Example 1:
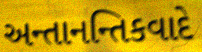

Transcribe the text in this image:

અન્તાનન્તિકવાદે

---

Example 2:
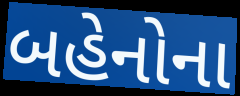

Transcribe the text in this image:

બહેનોના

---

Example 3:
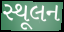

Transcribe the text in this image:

સ્થૂલન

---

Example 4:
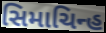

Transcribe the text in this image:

સિમાચિન્હ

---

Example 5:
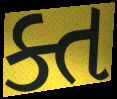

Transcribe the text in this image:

ક્ત